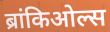
ब्रांकिओल्स